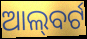
ଆଲ୍‌ବର୍ଟ